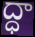
ద్ధా